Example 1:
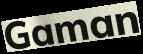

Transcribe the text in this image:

Gaman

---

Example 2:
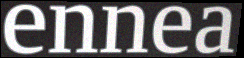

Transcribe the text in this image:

ennea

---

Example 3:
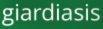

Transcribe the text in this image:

giardiasis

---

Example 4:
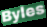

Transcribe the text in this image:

Byles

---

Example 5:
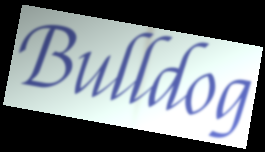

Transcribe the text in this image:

Bulldog